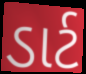
ડાર્ટ